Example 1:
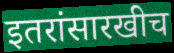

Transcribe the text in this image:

इतरांसारखीच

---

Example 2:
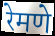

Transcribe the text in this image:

रेमणे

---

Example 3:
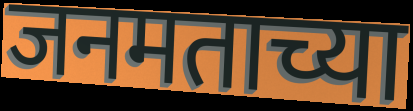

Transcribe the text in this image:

जनमताच्या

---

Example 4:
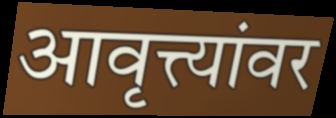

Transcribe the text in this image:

आवृत्त्यांवर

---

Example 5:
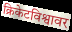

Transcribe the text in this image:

क्रिकेटविश्वावर